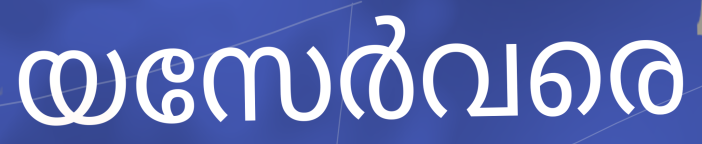
യസേർവരെ